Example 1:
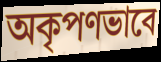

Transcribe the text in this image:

অকৃপণভাবে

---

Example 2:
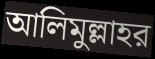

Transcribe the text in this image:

আলিমুল্লাহর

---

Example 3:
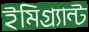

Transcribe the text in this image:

ইমিগ্র্যান্ট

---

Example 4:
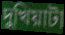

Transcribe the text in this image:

দুখিয়াটা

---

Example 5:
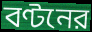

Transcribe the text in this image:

বণ্টনের